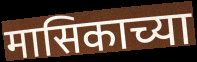
मासिकाच्या